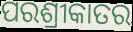
ପରଶ୍ରୀକାତର